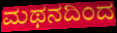
ಮಥನದಿಂದ